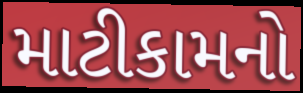
માટીકામનો